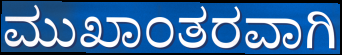
ಮುಖಾಂತರವಾಗಿ